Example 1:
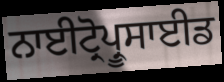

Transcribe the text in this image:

ਨਾਈਟ੍ਰੋਪ੍ਰੂਸਾਈਡ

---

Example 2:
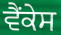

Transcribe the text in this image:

ਵੈਂਕੇਸ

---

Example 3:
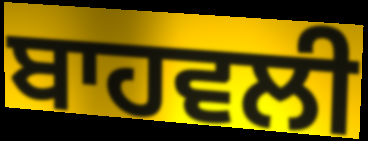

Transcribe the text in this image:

ਬਾਹਵਲੀ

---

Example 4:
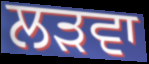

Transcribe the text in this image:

ਲੜਵਾ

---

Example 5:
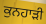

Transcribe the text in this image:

ਕੁਨਹਾੜੀ